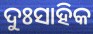
ଦୁଃସାହିକ